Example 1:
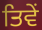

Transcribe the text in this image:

ਤਿਵੇਂ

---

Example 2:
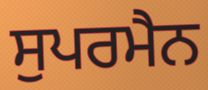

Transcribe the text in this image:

ਸੁਪਰਮੈਨ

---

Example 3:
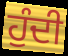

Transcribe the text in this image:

ਹੁੰਦੀ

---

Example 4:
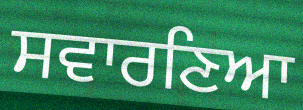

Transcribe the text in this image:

ਸਵਾਰਣਿਆ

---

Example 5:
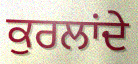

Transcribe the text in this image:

ਕੁਰਲਾਂਦੇ